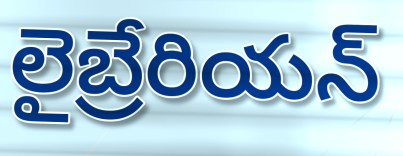
లైబ్రేరియన్